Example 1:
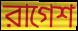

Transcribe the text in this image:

রাগেশ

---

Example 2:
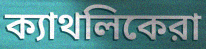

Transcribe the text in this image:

ক্যাথলিকেরা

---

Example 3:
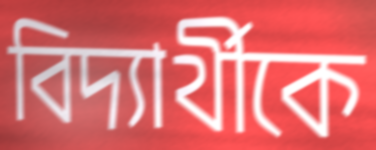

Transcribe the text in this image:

বিদ্যার্থীকে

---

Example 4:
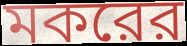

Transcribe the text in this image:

মকরের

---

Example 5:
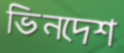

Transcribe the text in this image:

ভিনদেশ